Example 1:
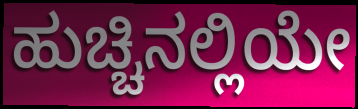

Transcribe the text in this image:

ಹುಚ್ಚಿನಲ್ಲಿಯೇ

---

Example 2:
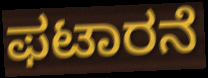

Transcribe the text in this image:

ಫಟಾರನೆ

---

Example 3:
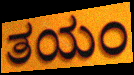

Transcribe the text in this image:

ತಯಂ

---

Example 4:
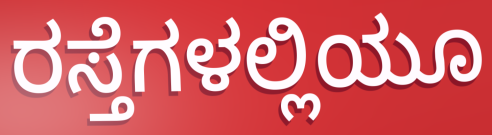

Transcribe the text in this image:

ರಸ್ತೆಗಳಲ್ಲಿಯೂ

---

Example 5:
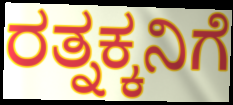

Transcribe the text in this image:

ರತ್ನಕ್ಕನಿಗೆ